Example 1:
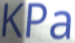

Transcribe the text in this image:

KPa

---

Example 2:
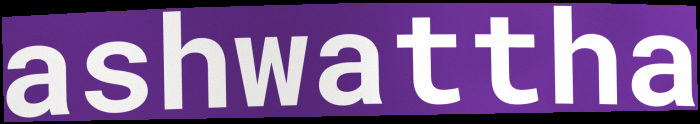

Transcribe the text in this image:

ashwattha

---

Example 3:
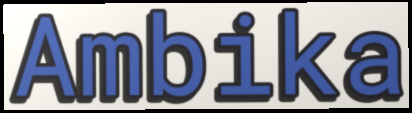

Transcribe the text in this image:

Ambika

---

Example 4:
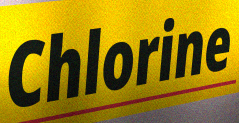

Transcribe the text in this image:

Chlorine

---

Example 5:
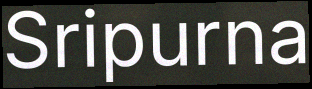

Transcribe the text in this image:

Sripurna